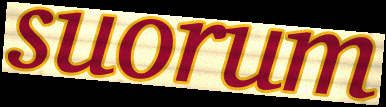
suorum